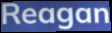
Reagan